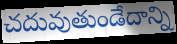
చదువుతుండేదాన్ని